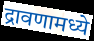
द्रावणामध्ये